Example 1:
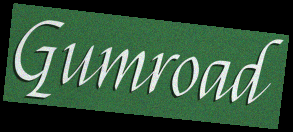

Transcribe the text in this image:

Gumroad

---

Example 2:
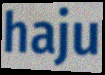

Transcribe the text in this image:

haju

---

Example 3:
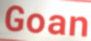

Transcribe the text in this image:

Goan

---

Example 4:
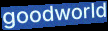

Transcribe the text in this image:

goodworld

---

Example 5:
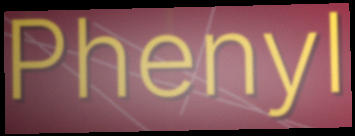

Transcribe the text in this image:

Phenyl